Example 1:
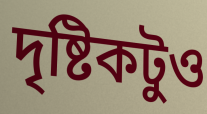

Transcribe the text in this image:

দৃষ্টিকটুও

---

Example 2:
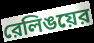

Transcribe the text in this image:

রেলিঙয়ের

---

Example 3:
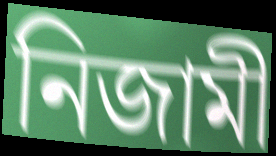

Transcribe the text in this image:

নিজামী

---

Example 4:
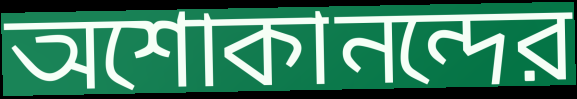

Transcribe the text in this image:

অশোকানন্দের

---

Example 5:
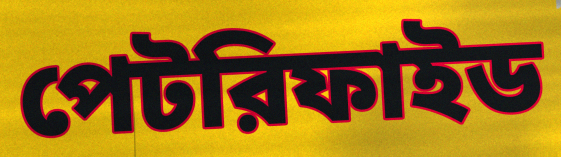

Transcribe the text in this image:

পেটরিফাইড